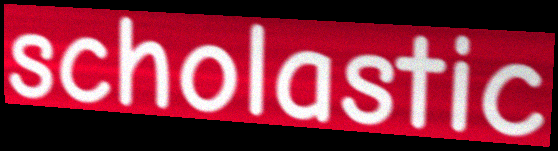
scholastic